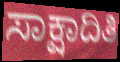
ಸಾಕ್ಷಾದಿತಿ